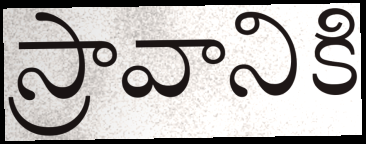
స్రావానికి